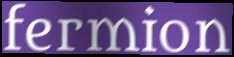
fermion